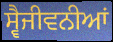
ਸ੍ਵੈਜੀਵਨੀਆਂ